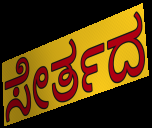
ಸೇರ್ತದ